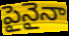
పైనైనా